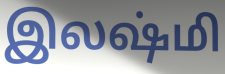
இலஷ்மி